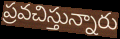
ప్రవచిస్తున్నారు